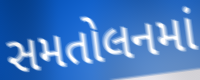
સમતોલનમાં